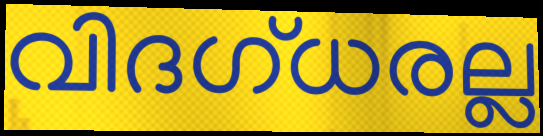
വിദഗ്ധരല്ല